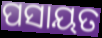
ପସାୟତ